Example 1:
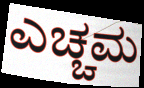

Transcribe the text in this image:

ಎಚ್ಚಮ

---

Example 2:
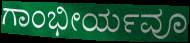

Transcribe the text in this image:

ಗಾಂಭೀರ್ಯವೂ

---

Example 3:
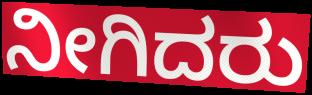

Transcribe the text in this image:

ನೀಗಿದರು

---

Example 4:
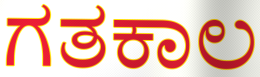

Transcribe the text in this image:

ಗತಕಾಲ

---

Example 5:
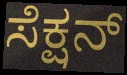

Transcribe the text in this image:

ಸೆಕ್ಷನ್